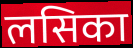
लसिका